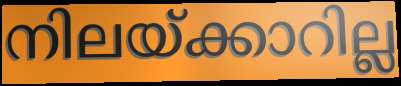
നിലയ്ക്കാറില്ല